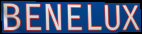
BENELUX